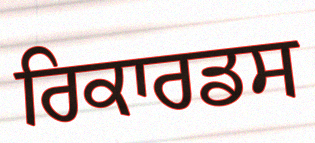
ਰਿਕਾਰਡਸ